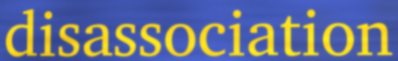
disassociation